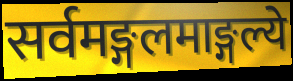
सर्वमङ्गलमाङ्गल्ये